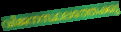
വിജനസ്ഥലത്തേക്കു